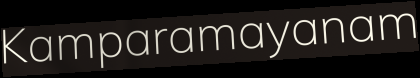
Kamparamayanam